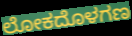
ಲೋಕದೊಳಗಣ